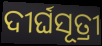
ଦୀର୍ଘସୂତ୍ରୀ